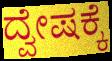
ದ್ವೇಷಕ್ಕೆ